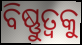
ବିଷ୍ଣୁତ୍ୱକୁ